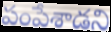
పంపేశాడని